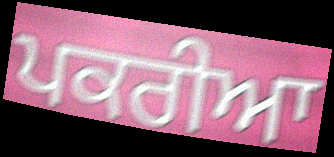
ਪਕਰੀਆ